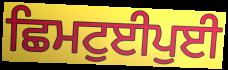
ਛਿਮਟੁਈਪੁਈ